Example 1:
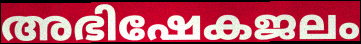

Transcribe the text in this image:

അഭിഷേകജലം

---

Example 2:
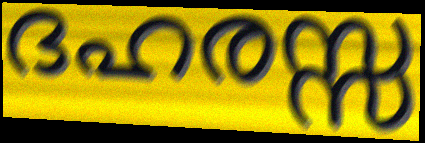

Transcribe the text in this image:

ദഹരസ്സ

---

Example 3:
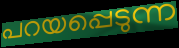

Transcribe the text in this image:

പറയപ്പെടുന്ന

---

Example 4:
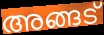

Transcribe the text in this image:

അങ്ങട്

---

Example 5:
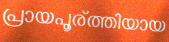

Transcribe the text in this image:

പ്രായപൂര്ത്തിയായ